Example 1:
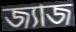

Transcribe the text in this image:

জ্যাজ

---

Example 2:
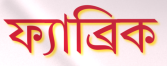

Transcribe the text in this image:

ফ্যাব্রিক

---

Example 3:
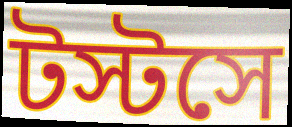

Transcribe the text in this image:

টস্টসে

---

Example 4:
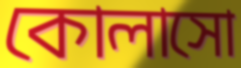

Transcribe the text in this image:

কোলাসো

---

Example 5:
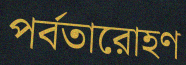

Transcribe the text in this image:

পর্বতারোহণ